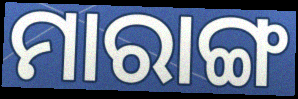
ମାରାଙ୍ଗ